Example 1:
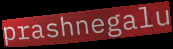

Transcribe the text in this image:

prashnegalu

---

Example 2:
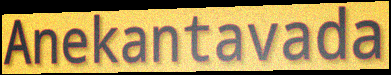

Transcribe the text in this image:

Anekantavada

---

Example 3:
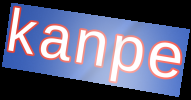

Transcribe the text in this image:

kanpe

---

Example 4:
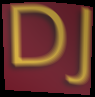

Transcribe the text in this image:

DJ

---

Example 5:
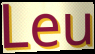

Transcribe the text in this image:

Leu